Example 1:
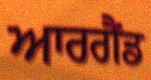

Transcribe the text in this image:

ਆਰਗੈਂਡ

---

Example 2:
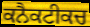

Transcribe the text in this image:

ਕਨੈਕਟੀਕਚ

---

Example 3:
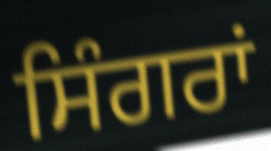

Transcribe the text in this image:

ਸਿੰਗਰਾਂ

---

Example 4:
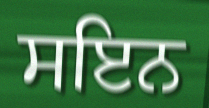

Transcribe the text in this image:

ਸਇਨ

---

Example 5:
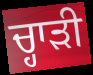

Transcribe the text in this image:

ਚ੍ਹਾੜੀ